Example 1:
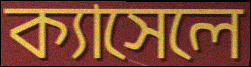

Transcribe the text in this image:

ক্যাসেলে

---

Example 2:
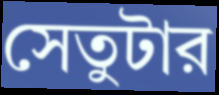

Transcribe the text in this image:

সেতুটার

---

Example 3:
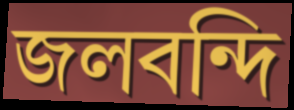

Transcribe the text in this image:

জলবন্দি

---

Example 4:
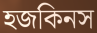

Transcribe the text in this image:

হজকিনস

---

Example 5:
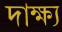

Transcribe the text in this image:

দাক্ষ্য